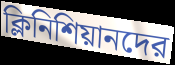
ক্লিনিশিয়ানদের